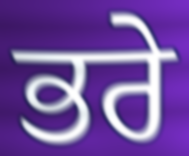
ਭਰੇ